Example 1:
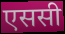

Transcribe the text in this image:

एससी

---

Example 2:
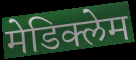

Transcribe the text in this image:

मेडिक्लेम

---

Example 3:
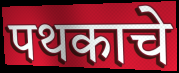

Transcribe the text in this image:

पथकाचे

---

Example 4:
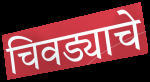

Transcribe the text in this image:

चिवड्याचे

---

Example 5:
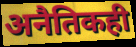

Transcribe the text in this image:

अनैतिकही